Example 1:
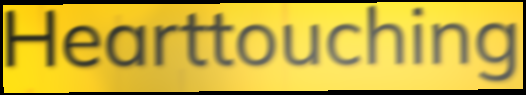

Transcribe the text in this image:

Hearttouching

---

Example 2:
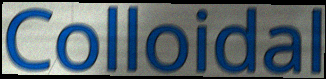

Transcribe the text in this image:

Colloidal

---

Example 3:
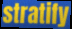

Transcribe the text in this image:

stratify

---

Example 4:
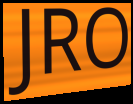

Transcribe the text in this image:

JRO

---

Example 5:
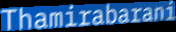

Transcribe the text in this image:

Thamirabarani